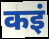
कइं